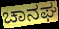
ಚಾನಘ